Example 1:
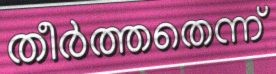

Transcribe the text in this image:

തീർത്തതെന്ന്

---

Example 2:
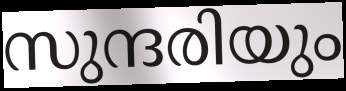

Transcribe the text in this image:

സുന്ദരിയും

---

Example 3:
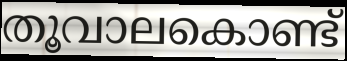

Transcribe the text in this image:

തൂവാലകൊണ്ട്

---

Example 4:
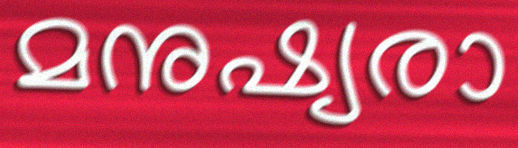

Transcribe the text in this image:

മനുഷ്യരാ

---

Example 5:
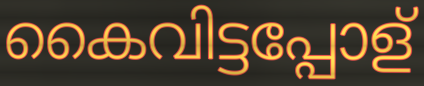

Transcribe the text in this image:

കൈവിട്ടപ്പോള്